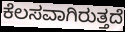
ಕೆಲಸವಾಗಿರುತ್ತದೆ